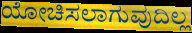
ಯೋಚಿಸಲಾಗುವುದಿಲ್ಲ